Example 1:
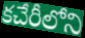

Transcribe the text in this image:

కచేరీలోని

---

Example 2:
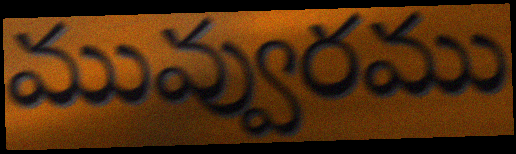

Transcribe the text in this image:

మువ్వురము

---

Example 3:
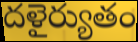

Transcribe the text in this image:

దళైర్యుతం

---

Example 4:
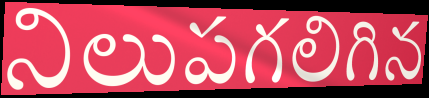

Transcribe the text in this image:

నిలుపగలిగిన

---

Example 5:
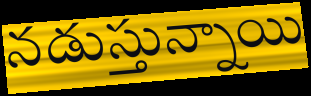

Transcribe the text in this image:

నడుస్తున్నాయి